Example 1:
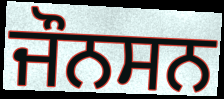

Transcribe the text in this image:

ਜੌਨਸਨ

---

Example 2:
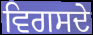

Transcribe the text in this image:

ਵਿਗਸਦੇ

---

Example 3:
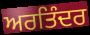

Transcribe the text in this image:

ਅਰਤਿੰਦਰ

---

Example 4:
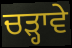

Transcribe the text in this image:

ਚੜ੍ਹਾਵੇ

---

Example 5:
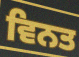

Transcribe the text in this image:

ਵਿਨਤ